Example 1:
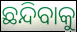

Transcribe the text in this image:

ଛନ୍ଦିବାକୁ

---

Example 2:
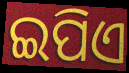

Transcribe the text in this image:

ଇପିଏ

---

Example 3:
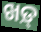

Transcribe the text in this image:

ଖଡ଼୍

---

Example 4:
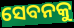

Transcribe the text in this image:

ସେବନକୁ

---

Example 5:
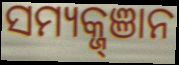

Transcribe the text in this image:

ସମ୍ୟକ୍ଜ୍ଞାନ